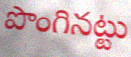
పొంగినట్టు